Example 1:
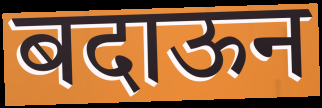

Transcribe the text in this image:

बदाऊन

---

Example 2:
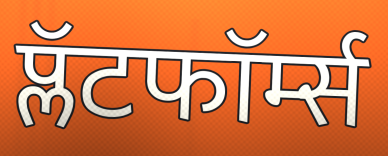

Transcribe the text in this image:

प्लॅटफॉर्म्स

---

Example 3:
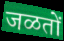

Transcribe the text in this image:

जळतों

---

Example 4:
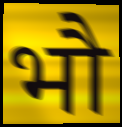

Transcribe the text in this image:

भौ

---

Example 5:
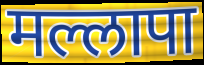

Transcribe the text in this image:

मल्लापा